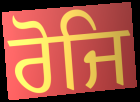
ਰੋਜਿ